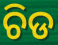
ଚିଡ